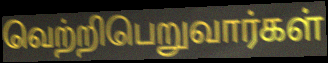
வெற்றிபெறுவார்கள்